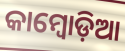
କାମ୍ବୋଡ଼ିଆ